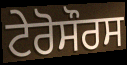
ਟੇਰੋਸੌਰਸ